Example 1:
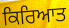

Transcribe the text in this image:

ਕਿਰਿਆਤ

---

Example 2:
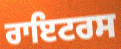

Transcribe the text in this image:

ਰਾਇਟਰਸ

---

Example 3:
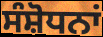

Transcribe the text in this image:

ਸੰਸ਼ੋਧਨਾਂ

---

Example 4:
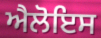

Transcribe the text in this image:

ਐਲੋਇਸ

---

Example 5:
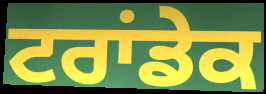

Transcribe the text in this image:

ਟਰਾਂਡੇਕ